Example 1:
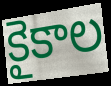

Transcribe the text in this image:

కైకాల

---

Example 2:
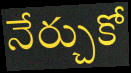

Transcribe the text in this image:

నేర్చుకో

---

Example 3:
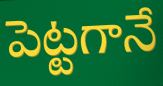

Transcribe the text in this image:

పెట్టగానే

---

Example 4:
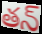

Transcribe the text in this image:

తన్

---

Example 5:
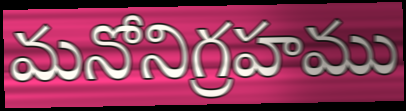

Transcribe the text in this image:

మనోనిగ్రహము